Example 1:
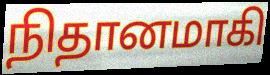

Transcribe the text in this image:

நிதானமாகி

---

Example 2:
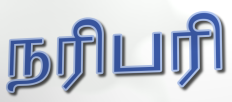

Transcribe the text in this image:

நரிபரி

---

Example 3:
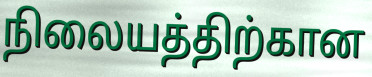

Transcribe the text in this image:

நிலையத்திற்கான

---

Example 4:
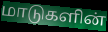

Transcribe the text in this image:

மாடுகளின்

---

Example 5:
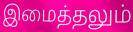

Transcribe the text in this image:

இமைத்தலும்